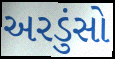
અરડુંસો